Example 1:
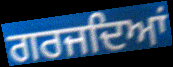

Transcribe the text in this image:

ਗਰਜਦਿਆਂ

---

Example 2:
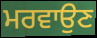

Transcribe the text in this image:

ਮਰਵਾਉਣ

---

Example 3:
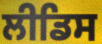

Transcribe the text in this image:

ਲੀਡਿਸ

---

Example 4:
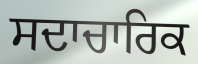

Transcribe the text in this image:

ਸਦਾਚਾਰਿਕ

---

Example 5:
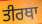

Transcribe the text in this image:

ਤੀਰਥਾ